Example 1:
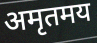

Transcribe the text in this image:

अमृतमय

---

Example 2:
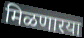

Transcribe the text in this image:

मिळणारया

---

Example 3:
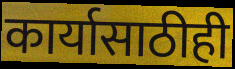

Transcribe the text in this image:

कार्यासाठीही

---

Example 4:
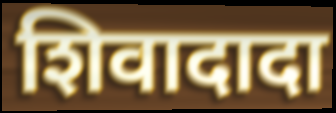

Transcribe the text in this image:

शिवादादा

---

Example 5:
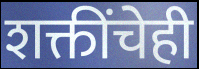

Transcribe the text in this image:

शक्तींचेही